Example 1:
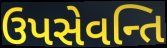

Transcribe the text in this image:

ઉપસેવન્તિ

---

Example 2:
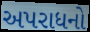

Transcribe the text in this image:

અપરાધનો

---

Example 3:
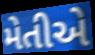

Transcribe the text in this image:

મેતીએ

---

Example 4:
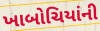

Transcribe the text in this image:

ખાબોચિયાંની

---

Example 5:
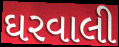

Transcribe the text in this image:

ઘરવાલી